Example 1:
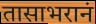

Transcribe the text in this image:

तासाभरानं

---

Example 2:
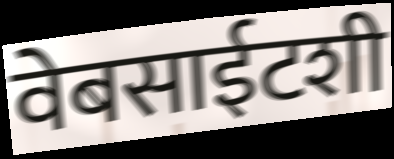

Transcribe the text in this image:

वेबसाईटशी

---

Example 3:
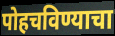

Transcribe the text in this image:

पोहचविण्याचा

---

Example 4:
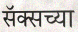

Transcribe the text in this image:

सॅक्सच्या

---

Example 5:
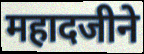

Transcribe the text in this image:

महादजीने